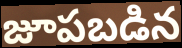
జూపబడిన